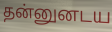
தன்னுனடய